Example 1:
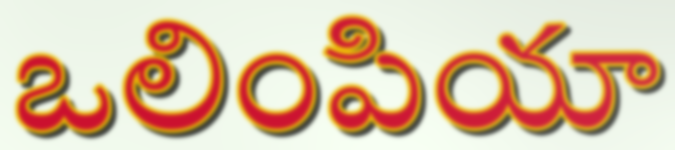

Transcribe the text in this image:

ఒలింపియా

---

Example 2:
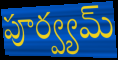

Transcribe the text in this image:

పూర్వ్యమ్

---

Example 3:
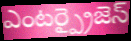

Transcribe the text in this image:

ఎంటర్ప్రైజెస్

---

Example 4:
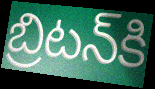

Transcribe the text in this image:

బ్రిటన్‌కి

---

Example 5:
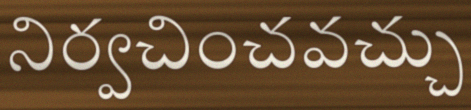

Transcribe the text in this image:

నిర్వచించవచ్చు